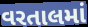
વરતાલમાં